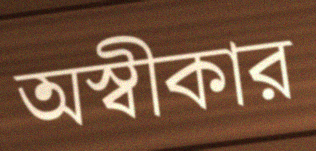
অস্বীকার